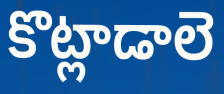
కొట్లాడాలె